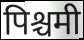
पिश्चमी